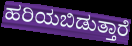
ಹರಿಯಬಿಡುತ್ತಾರೆ